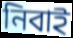
নিবাই